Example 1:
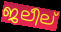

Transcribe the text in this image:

ജലീല്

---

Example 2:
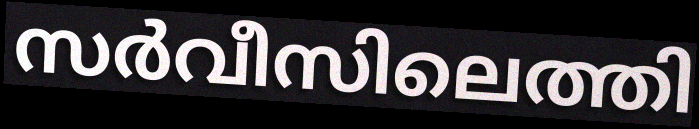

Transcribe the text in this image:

സർവീസിലെത്തി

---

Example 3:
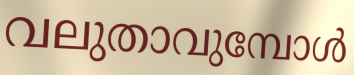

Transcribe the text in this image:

വലുതാവുമ്പോൾ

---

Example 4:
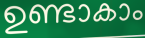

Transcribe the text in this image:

ഉണ്ടാകാം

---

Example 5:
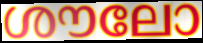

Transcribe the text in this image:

ശൗലോ